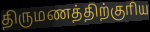
திருமணத்திற்குரிய